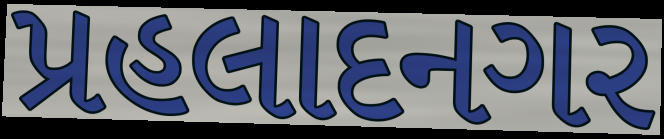
પ્રહલાદનગર